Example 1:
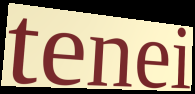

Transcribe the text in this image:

tenei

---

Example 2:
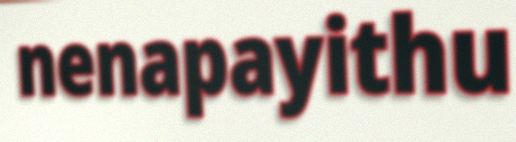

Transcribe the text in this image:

nenapayithu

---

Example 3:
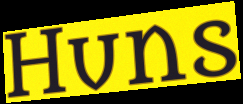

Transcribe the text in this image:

Huns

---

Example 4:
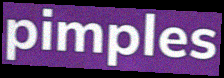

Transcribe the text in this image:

pimples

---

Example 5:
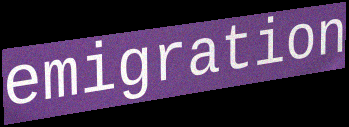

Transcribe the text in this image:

emigration